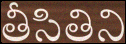
తీసితిని